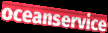
oceanservice